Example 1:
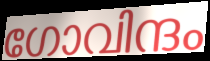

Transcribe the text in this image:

ഗോവിന്ദം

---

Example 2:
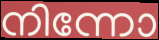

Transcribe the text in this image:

നിന്നോ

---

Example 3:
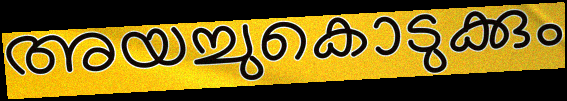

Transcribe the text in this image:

അയച്ചുകൊടുക്കും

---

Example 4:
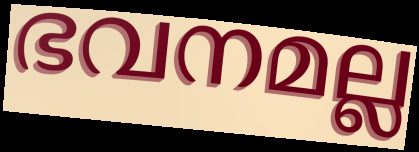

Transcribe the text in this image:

ഭവനമല്ല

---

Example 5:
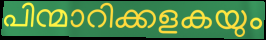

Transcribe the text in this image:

പിന്മാറിക്കളകയും